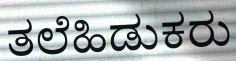
ತಲೆಹಿಡುಕರು